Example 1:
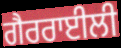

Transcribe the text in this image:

ਗੈਰਰਾਈਲੀ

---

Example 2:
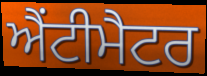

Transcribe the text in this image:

ਐਂਟੀਮੈਟਰ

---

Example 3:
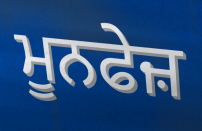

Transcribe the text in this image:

ਮੂਨਫੇਜ਼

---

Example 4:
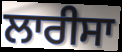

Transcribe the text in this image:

ਲਾਰੀਸਾ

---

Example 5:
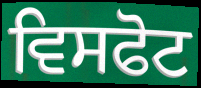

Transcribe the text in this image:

ਵਿਸਫੋਟ